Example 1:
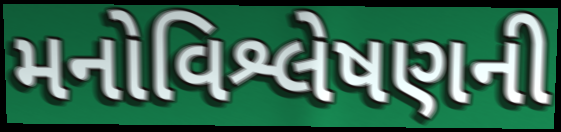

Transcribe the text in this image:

મનોવિશ્લેષણની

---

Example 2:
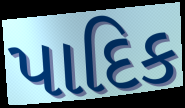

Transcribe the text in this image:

પાદિક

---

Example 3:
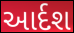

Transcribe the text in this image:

આર્દશ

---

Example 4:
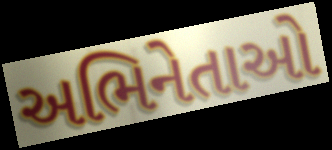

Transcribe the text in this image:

અભિનેતાઓ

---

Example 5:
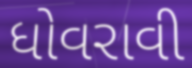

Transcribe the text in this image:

ધોવરાવી